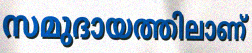
സമുദായത്തിലാണ്